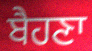
ਬੈਹਣਾ